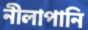
নীলাপানি